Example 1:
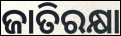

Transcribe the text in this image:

ଜାତିରକ୍ଷା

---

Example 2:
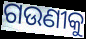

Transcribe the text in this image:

ଗଉଣୀକୁ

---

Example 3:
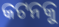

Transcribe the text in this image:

କଟନକୁ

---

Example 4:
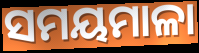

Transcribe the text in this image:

ସମୟମାଳା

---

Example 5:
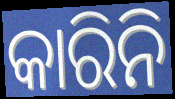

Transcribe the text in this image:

କାରିନି